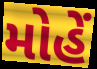
મોહેં